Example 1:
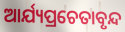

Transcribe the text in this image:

ଆର୍ଯ୍ୟପ୍ରଚେତାବୃନ୍ଦ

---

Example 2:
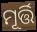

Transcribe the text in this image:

ମୂର୍ତ୍ତି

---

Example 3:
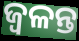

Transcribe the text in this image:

ଜ୍ବଳନ୍ତ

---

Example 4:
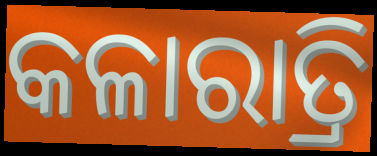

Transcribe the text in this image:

କଳାରାତ୍ରି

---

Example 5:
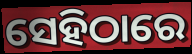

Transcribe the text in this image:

ସେହିଠାରେ